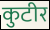
कुटीर